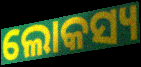
ଲୋକସ୍ୟ